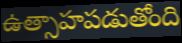
ఉత్సాహపడుతోంది